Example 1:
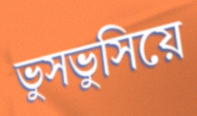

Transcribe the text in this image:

ভুসভুসিয়ে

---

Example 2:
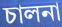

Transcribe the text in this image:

চালনা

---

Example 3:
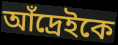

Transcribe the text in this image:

আঁদ্রেইকে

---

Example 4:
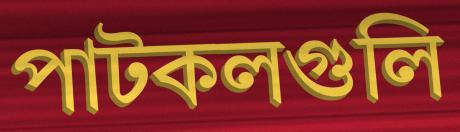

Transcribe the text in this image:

পাটকলগুলি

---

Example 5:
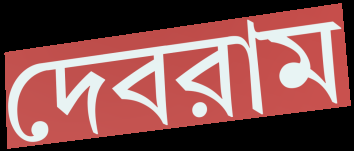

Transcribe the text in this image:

দেবরাম